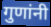
गुणांनी